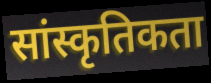
सांस्कृतिकता